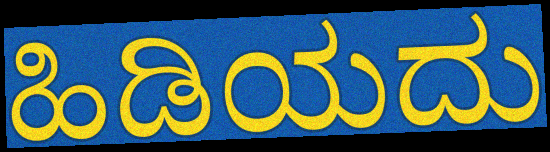
ಹಿಡಿಯದು